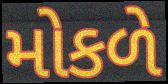
મોકળે